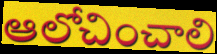
ఆలోచించాలి